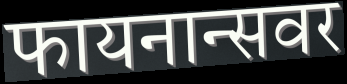
फायनान्सवर